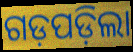
ଗଡ଼ପଡ଼ିଲା